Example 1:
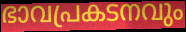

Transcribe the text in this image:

ഭാവപ്രകടനവും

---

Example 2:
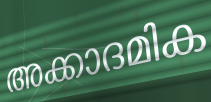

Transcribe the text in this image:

അക്കാദമിക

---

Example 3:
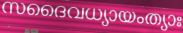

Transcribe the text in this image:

സദൈവധ്യായംത്യാഃ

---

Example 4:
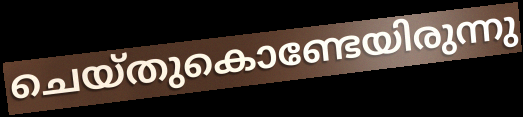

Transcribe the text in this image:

ചെയ്തുകൊണ്ടേയിരുന്നു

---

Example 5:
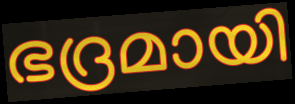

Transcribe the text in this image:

ഭദ്രമായി